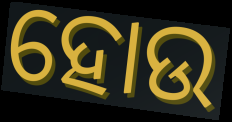
ହୋଉ